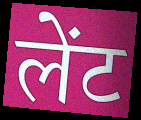
लेंट